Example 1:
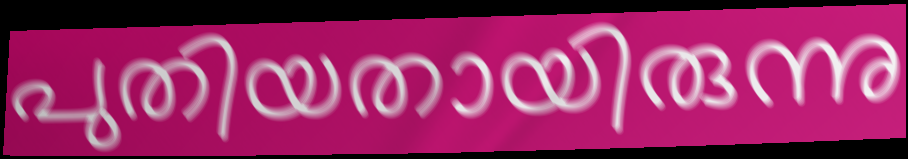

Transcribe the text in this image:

പുതിയതായിരുന്നു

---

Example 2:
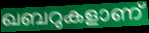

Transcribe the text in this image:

ഖബറുകളാണ്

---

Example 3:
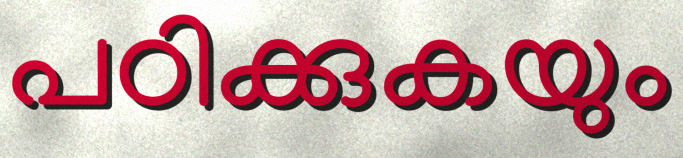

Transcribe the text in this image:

പഠിക്കുകയും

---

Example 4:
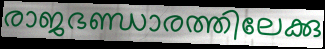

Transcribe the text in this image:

രാജഭണ്ഡാരത്തിലേക്കു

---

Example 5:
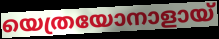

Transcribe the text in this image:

യെത്രയോനാളായ്